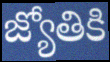
జ్యోతికి